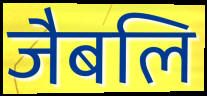
जैबलि